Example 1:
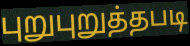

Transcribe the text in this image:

புறுபுறுத்தபடி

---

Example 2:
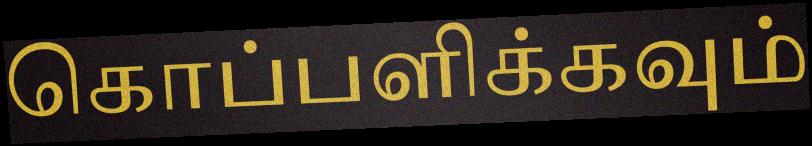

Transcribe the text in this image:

கொப்பளிக்கவும்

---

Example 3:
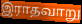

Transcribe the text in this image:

இராதவாறு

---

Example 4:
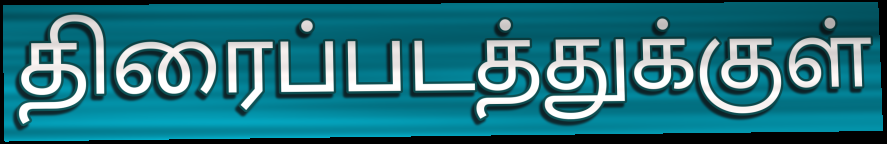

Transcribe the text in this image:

திரைப்படத்துக்குள்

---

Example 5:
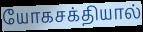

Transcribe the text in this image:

யோகசக்தியால்